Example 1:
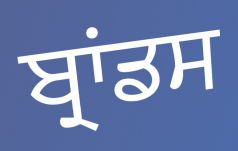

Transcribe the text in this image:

ਬ੍ਰਾਂਡਸ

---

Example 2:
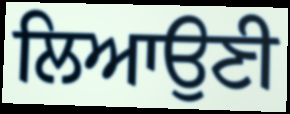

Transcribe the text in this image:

ਲਿਆਉਣੀ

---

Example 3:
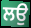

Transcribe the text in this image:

ਲਉ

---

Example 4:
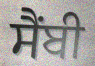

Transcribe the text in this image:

ਸੈਂਬੀ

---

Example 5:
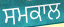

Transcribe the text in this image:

ਸਮਕਾਲ